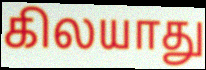
கிலயாது